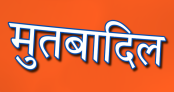
मुतबादिल